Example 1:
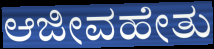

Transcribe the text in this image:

ಆಜೀವಹೇತು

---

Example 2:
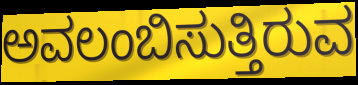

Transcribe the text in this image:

ಅವಲಂಬಿಸುತ್ತಿರುವ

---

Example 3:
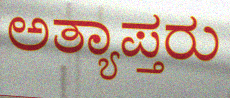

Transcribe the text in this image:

ಅತ್ಯಾಪ್ತರು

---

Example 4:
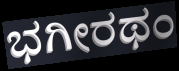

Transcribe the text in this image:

ಭಗೀರಥಂ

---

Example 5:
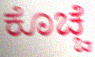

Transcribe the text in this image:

ಕೊಚ್ಚೆ